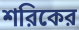
শরিকের